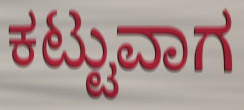
ಕಟ್ಟುವಾಗ